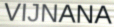
VIJNANA